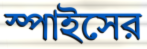
স্পাইসের